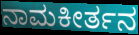
ನಾಮಕೀರ್ತನ